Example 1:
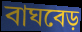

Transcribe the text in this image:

বাঘবেড়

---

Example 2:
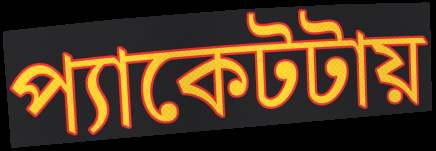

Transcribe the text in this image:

প্যাকেটটায়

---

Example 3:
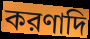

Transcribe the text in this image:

করণাদি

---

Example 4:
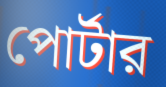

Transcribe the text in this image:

পোর্টার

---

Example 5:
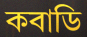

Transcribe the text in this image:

কবাডি